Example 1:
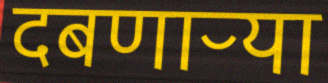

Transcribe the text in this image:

दबणाऱ्या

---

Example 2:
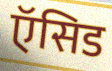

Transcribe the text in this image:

ऍसिड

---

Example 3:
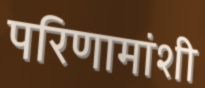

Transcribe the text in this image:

परिणामांशी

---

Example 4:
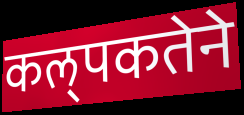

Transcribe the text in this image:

कल्पकतेने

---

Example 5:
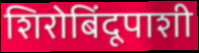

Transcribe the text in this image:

शिरोबिंदूपाशी